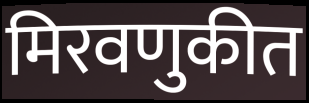
मिरवणुकीत